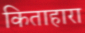
किताहारा